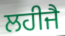
ਲਹੀਜੈ